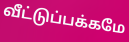
வீட்டுப்பக்கமே